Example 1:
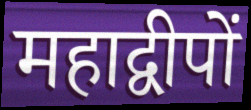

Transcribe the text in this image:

महाद्वीपों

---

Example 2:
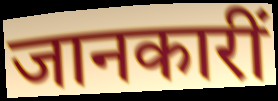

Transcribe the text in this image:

जानकारीं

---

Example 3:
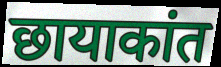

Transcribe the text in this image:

छायाकांत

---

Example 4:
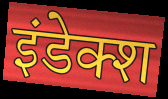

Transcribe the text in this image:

इंडेक्श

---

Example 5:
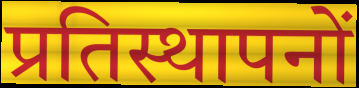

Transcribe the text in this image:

प्रतिस्थापनों